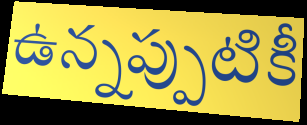
ఉన్నప్పుటికీ